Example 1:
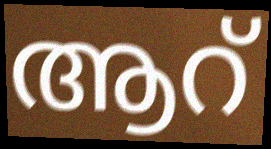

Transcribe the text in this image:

ആറ്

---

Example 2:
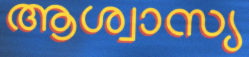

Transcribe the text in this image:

ആശ്വാസ്യ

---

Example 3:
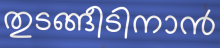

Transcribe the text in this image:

തുടങ്ങീടിനാൻ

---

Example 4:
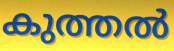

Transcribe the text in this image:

കുത്തൽ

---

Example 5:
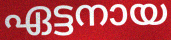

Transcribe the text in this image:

ഏട്ടനായ